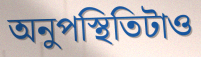
অনুপস্থিতিটাও